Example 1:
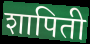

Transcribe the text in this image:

शापिती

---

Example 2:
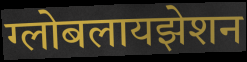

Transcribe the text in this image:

ग्लोबलायझेशन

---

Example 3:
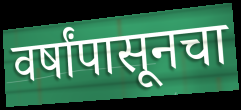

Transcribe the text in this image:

वर्षांपासूनचा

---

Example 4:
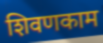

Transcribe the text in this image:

शिवणकाम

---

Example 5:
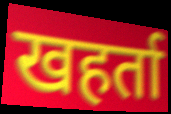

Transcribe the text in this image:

खहर्ता